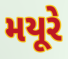
મયૂરે